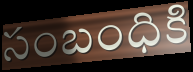
సంబంధికి